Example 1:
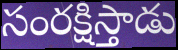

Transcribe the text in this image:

సంరక్షిస్తాడు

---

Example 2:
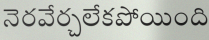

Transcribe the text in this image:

నెరవేర్చలేకపోయింది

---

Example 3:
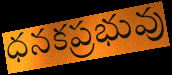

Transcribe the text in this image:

ధనకప్రభువు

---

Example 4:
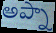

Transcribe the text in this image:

అప్నా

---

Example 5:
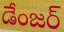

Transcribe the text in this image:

డేంజర్